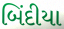
બિંદીયા